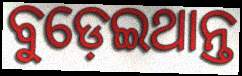
ବୁଡ଼େଇଥାନ୍ତ